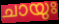
ചായുഃ